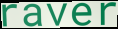
raver